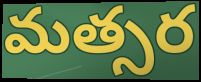
మత్సర